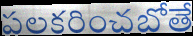
పలకరించబోతే